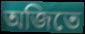
অজিতে